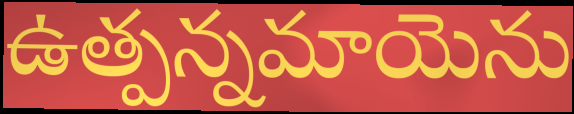
ఉత్పన్నమాయెను